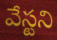
వేస్టని